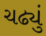
ચઢ્યું